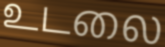
உடலை